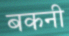
बकनी